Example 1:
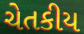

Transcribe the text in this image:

ચેતકીય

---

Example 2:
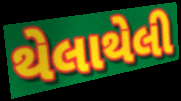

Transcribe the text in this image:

થેલાથેલી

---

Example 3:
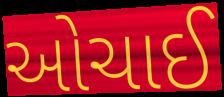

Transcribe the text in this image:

ઓચાઈ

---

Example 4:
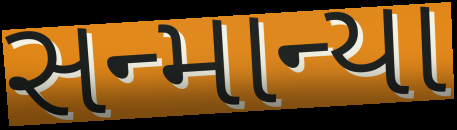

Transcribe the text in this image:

સન્માન્યા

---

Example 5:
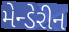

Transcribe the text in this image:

મેન્ડેરીન